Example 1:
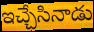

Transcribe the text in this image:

ఇచ్చేసినాడు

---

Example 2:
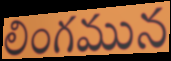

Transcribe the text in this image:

లింగమున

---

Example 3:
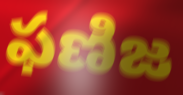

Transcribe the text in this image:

ఫణిజ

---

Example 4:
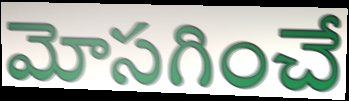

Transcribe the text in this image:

మోసగించే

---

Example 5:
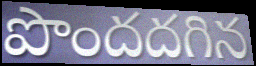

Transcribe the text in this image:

పొందదగిన